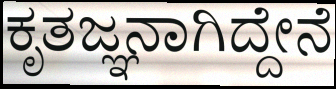
ಕೃತಜ್ಞನಾಗಿದ್ದೇನೆ